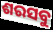
ଶରସବୁ